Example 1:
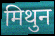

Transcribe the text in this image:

मिथुन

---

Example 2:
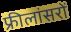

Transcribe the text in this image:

फ्रीलांसरों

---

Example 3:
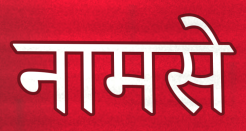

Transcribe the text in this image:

नामसे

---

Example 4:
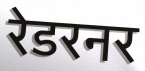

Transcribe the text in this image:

रेडरनर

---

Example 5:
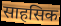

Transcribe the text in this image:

साहसिक